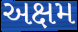
અક્ષમ